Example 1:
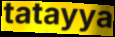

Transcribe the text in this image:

tatayya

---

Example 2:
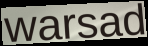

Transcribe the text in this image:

warsad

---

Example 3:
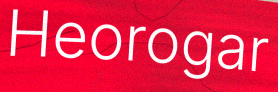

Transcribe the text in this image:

Heorogar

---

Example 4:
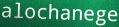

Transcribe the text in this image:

alochanege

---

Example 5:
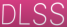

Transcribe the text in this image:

DLSS